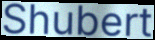
Shubert